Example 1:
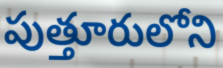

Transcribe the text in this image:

పుత్తూరులోని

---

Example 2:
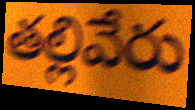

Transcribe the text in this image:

తల్లివేరు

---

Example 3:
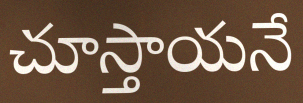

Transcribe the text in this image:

చూస్తాయనే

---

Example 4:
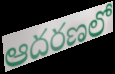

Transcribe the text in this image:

ఆదరణలో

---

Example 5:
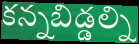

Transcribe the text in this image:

కన్నబిడ్డల్ని